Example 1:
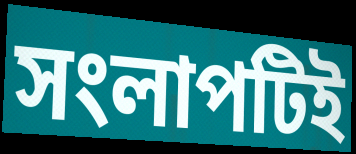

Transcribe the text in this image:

সংলাপটিই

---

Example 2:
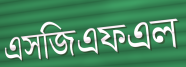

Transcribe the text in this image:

এসজিএফএল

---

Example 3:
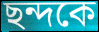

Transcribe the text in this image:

ছন্দকে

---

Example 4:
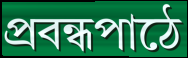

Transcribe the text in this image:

প্রবন্ধপাঠে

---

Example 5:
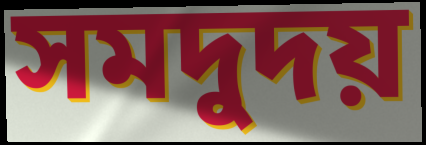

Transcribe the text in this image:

সমদুদয়